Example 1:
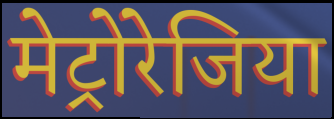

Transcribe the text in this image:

मेट्रोरेजिया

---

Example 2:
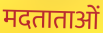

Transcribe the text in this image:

मदताताओं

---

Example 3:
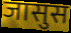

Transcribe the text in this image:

जासुस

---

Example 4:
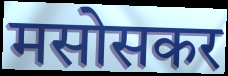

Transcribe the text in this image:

मसोसकर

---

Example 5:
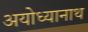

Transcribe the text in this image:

अयोध्यानाथ